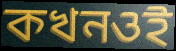
কখনওই